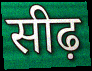
सीढ़